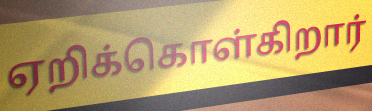
ஏறிக்கொள்கிறார்